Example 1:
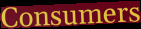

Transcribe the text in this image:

Consumers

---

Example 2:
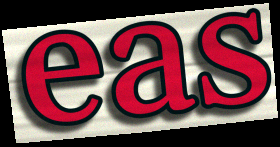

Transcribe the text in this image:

eas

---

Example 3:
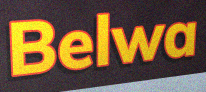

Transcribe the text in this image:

Belwa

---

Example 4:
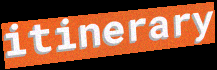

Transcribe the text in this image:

itinerary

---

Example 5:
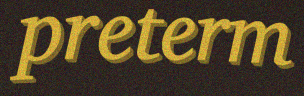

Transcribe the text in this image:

preterm